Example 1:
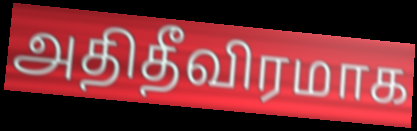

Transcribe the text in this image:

அதிதீவிரமாக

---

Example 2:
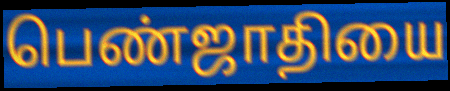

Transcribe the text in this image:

பெண்ஜாதியை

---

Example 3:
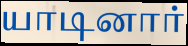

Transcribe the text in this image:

யாடினார்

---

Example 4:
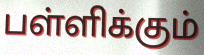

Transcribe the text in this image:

பள்ளிக்கும்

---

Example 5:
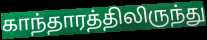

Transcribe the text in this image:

காந்தாரத்திலிருந்து